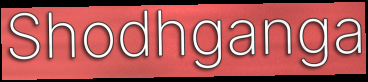
Shodhganga